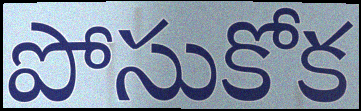
పోసుకోక